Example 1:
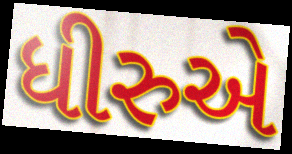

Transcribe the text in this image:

ધીરુએ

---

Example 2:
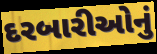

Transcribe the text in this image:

દરબારીઓનું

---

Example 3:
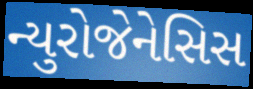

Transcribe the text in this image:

ન્યુરોજેનેસિસ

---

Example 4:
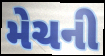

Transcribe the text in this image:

મેચની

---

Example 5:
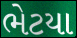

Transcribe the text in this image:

ભેટયા